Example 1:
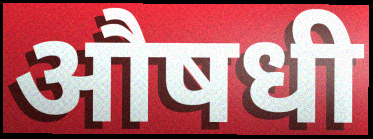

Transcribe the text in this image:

औषधी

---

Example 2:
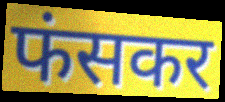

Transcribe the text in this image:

फंसकर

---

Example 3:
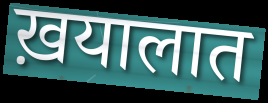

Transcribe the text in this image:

ख़यालात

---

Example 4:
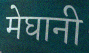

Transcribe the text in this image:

मेघानी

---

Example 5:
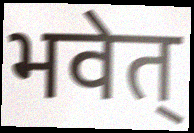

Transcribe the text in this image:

भवेत्